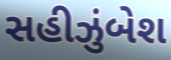
સહીઝુંબેશ